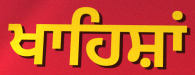
ਖਾਹਿਸ਼ਾਂ